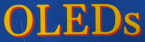
OLEDs